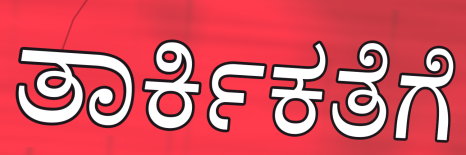
ತಾರ್ಕಿಕತೆಗೆ